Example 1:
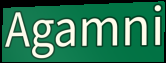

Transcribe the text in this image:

Agamni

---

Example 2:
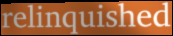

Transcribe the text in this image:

relinquished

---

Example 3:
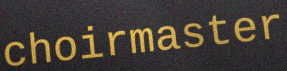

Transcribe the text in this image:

choirmaster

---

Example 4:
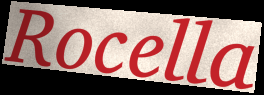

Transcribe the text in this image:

Rocella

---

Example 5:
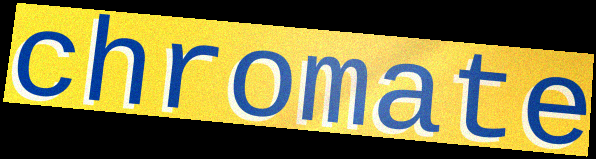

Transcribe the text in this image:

chromate